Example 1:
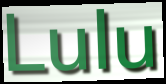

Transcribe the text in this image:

Lulu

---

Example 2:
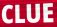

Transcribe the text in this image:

CLUE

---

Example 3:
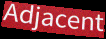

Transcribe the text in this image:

Adjacent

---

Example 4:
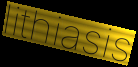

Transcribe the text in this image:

lithiasis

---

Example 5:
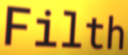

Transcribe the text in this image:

Filth